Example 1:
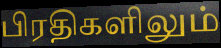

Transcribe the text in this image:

பிரதிகளிலும்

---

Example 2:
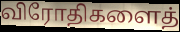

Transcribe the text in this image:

விரோதிகளைத்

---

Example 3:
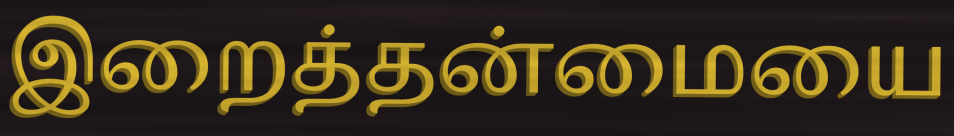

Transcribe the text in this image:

இறைத்தன்மையை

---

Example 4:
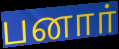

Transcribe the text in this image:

பனார்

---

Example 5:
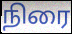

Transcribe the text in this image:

நிரை